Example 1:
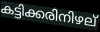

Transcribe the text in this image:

കട്ടിക്കരിനിഴല്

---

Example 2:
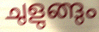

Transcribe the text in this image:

ചുളുങ്ങും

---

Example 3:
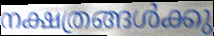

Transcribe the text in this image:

നക്ഷത്രങ്ങൾക്കു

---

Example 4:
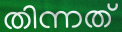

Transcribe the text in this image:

തിന്നത്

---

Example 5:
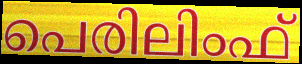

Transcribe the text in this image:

പെരിലിംഫ്